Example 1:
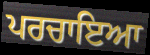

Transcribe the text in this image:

ਪਰਚਾਇਆ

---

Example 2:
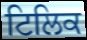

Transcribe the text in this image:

ਟਿਲਿਕ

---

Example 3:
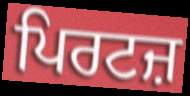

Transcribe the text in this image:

ਪਿਰਟਜ਼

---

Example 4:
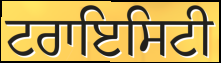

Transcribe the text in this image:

ਟਰਾਇਸਿਟੀ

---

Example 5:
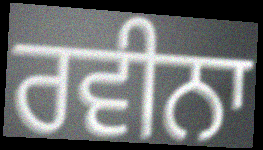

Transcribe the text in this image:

ਰਵੀਨਾ